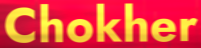
Chokher